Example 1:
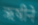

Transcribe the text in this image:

ऋषीने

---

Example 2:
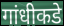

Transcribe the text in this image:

गांधीकडे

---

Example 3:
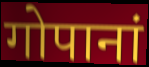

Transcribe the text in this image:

गोपानां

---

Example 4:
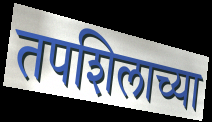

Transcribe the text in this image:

तपशिलाच्या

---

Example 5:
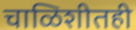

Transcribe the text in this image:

चाळिशीतही